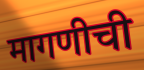
मागणीची